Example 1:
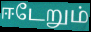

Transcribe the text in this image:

ஈடேறும்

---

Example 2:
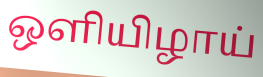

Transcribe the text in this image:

ஒளியிழாய்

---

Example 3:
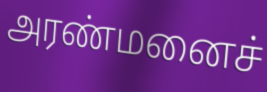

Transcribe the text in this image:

அரண்மனைச்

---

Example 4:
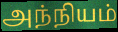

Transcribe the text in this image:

அந்நியம்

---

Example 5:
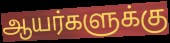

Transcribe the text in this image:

ஆயர்களுக்கு